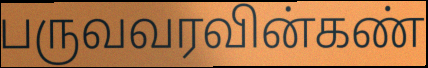
பருவவரவின்கண்